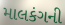
માલકંગની